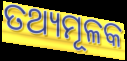
ତଥ୍ୟମୂଳକ